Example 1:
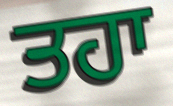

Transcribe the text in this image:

ਤਹਾ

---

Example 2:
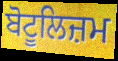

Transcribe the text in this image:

ਬੋਟੂਲਿਜ਼ਮ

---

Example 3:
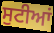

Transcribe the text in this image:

ਸੁਟੀਆਂ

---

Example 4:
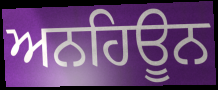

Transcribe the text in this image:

ਅਨਹਿਊਨ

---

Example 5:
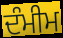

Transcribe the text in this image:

ਦੰਮੀਮ